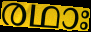
രഥാഃ